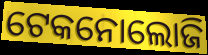
ଟେକନୋଲୋଜି